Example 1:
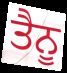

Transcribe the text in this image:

ਤੈਨੂ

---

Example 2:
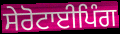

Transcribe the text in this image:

ਸੇਰੋਟਾਈਪਿੰਗ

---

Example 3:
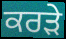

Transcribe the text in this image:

ਕਰੜੇ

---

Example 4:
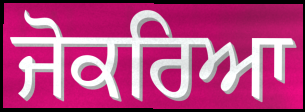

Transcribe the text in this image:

ਜੋਕਰਿਆ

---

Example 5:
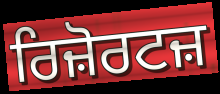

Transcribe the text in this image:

ਰਿਜ਼ੋਰਟਜ਼